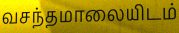
வசந்தமாலையிடம்